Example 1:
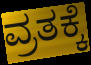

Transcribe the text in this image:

ವ್ರತಕ್ಕೆ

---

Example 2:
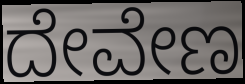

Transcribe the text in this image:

ದೇವೇಣ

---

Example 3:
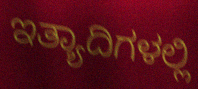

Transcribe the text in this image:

ಇತ್ಯಾದಿಗಳಲ್ಲಿ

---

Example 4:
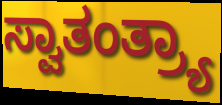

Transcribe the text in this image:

ಸ್ವಾತಂತ್ರ್ಯಾ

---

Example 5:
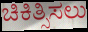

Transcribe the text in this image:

ಚಿಕಿತ್ಸಿಸಲು